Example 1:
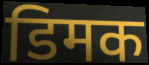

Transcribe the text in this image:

डिमक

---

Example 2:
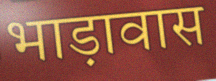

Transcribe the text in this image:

भाड़ावास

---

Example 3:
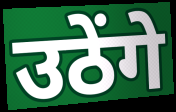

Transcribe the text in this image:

उठेंगे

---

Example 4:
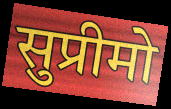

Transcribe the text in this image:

सुप्रीमो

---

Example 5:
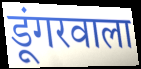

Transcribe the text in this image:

डूंगरवाला